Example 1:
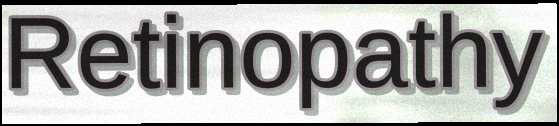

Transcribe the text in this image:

Retinopathy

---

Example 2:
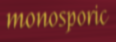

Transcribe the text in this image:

monosporic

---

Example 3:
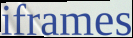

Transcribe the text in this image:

iframes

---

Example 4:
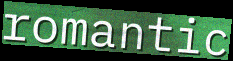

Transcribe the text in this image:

romantic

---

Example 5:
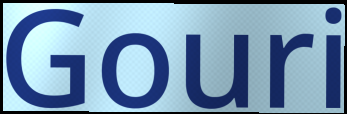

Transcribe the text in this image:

Gouri